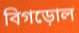
বিগড়োল